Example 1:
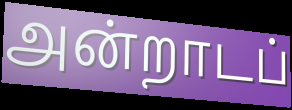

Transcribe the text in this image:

அன்றாடப்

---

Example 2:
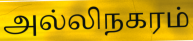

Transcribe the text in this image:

அல்லிநகரம்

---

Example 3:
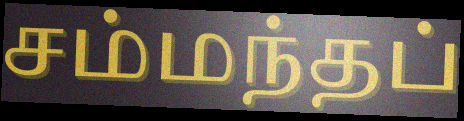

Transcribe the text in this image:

சம்மந்தப்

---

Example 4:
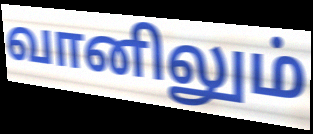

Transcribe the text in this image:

வானிலும்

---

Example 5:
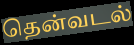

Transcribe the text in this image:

தென்வடல்